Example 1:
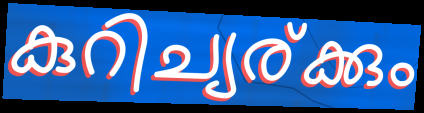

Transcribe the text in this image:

കുറിച്യര്ക്കും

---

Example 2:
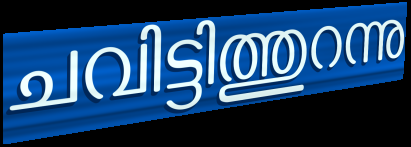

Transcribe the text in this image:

ചവിട്ടിത്തുറന്നു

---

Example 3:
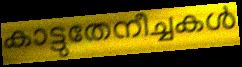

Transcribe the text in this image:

കാട്ടുതേനീച്ചകൾ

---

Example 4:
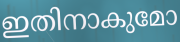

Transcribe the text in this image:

ഇതിനാകുമോ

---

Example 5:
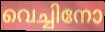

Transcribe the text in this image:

വെച്ചിനോ